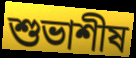
শুভাশীষ